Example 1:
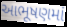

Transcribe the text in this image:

આભૂષણમાં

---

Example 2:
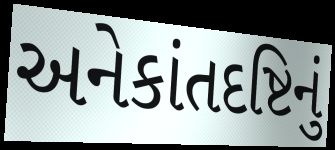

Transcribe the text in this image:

અનેકાંતદષ્ટિનું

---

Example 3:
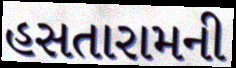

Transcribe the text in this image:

હસતારામની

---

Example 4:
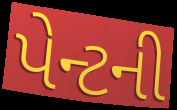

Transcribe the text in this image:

પેન્ટની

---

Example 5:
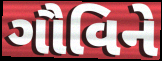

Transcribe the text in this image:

ગૌવિને